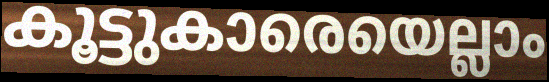
കൂട്ടുകാരെയെല്ലാം